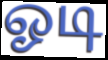
ஓடி